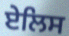
ਏਲਿਸ